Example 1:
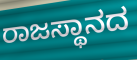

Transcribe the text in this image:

ರಾಜಸ್ಥಾನದ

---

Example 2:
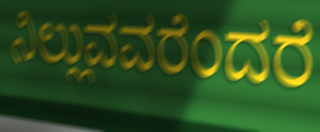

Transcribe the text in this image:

ನಿಲ್ಲುವವರೆಂದರೆ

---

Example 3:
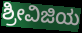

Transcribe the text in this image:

ಶ್ರೀವಿಜಿಯ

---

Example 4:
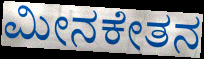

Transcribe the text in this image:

ಮೀನಕೇತನ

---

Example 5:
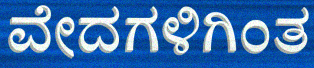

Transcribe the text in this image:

ವೇದಗಳಿಗಿಂತ